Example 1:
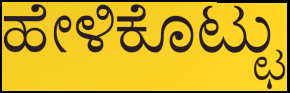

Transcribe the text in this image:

ಹೇಳಿಕೊಟ್ಟು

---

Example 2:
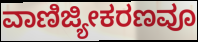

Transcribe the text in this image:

ವಾಣಿಜ್ಯೀಕರಣವೂ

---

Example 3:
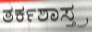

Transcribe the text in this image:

ತರ್ಕಶಾಸ್ತ್ರ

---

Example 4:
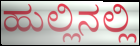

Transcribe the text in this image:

ಹುಲ್ಲಿನಲ್ಲಿ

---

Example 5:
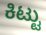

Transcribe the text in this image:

ಕಿಟ್ಟು